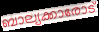
ബാല്യക്കാരോട്